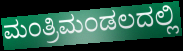
ಮಂತ್ರಿಮಂಡಲದಲ್ಲಿ